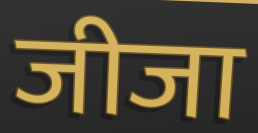
जीजा